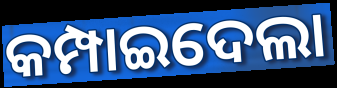
କମ୍ପାଇଦେଲା